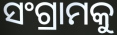
ସଂଗ୍ରାମକୁ